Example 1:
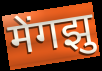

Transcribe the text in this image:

मेंगझु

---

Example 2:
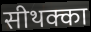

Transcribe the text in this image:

सीथक्का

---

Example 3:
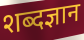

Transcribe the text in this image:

शब्दज्ञान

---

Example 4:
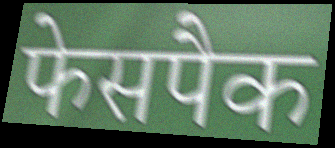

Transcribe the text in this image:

फेसपैक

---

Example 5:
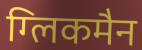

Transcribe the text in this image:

ग्लिकमैन